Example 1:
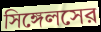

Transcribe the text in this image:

সিঙ্গেলসের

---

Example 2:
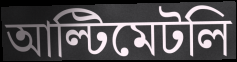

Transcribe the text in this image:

আল্টিমেটলি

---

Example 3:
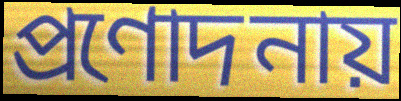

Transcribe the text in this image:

প্রণোদনায়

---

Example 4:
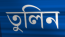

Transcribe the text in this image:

তুলিন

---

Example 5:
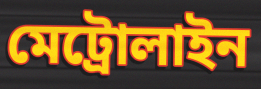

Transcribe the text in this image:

মেট্রোলাইন